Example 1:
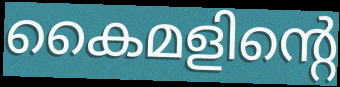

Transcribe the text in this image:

കൈമളിന്റെ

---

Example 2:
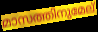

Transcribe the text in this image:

മാസത്തിനുമേല്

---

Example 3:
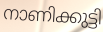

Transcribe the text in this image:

നാണിക്കുട്ടി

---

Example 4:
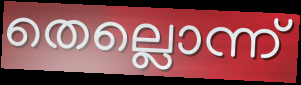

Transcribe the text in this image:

തെല്ലൊന്ന്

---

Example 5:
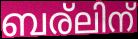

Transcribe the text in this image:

ബര്ലിന്